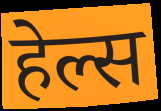
हेल्स